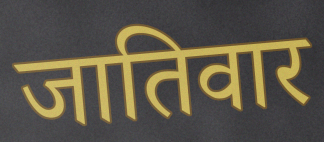
जातिवार